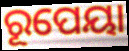
ରୂପେୟା